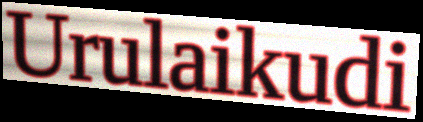
Urulaikudi